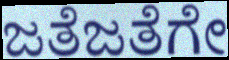
ಜತೆಜತೆಗೇ